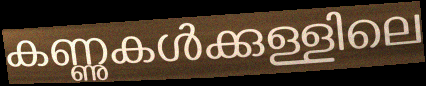
കണ്ണുകൾക്കുള്ളിലെ